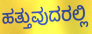
ಹತ್ತುವುದರಲ್ಲಿ